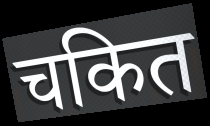
चकित